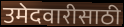
उमेदवारीसाठी